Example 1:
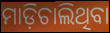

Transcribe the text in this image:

ମାଡ଼ିଚାଲିଥିବା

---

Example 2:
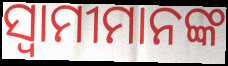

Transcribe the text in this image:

ସ୍ବାମୀମାନଙ୍କ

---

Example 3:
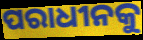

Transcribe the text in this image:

ପରାଧୀନକୁ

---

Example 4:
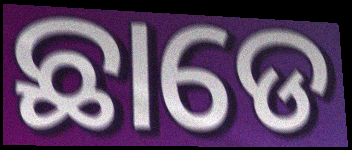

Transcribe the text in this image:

ଛାଡେ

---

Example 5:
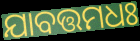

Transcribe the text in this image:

ଯାବତ୍ତମଧଃ